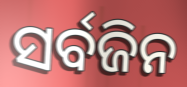
ସର୍ବଜିନ